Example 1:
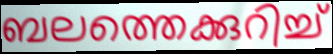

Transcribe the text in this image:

ബലത്തെക്കുറിച്ച്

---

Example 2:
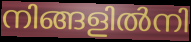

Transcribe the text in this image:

നിങ്ങളിൽനി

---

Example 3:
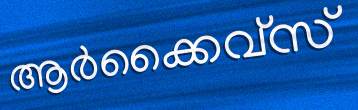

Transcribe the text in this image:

ആർക്കൈവ്സ്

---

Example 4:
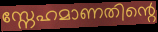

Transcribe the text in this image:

സ്നേഹമാണതിന്റെ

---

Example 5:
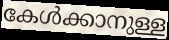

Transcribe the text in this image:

കേൾക്കാനുള്ള